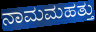
ನಾಮಮಹತ್ತು